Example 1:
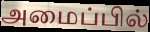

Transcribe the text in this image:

அமைப்பில்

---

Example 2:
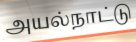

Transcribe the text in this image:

அயல்நாட்டு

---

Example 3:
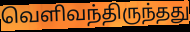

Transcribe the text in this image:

வெளிவந்திருந்தது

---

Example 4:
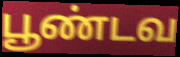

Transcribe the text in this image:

பூண்டவ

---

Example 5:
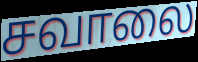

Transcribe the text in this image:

சவாலை